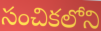
సంచికలోని